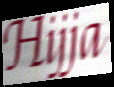
Hijja